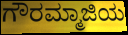
ಗೌರಮ್ಮಾಜಿಯ